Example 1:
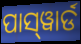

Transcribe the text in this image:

ପାସ୍‌ୱାର୍ଡ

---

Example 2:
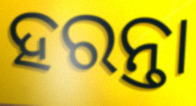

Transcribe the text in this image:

ହରନ୍ତା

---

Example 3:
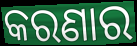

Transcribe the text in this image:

କରଣାର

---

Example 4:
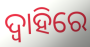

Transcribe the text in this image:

ଦ୍ୱାହିରେ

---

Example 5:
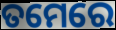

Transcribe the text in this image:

ତମେରେ